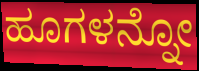
ಹೂಗಳನ್ನೋ